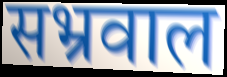
सभ्रवाल